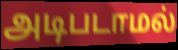
அடிபடாமல்